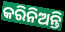
କରିନିଅନ୍ତି